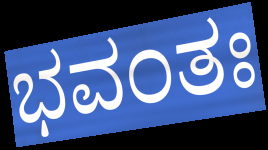
ಭವಂತಃ